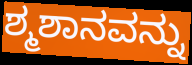
ಶ್ಮಶಾನವನ್ನು